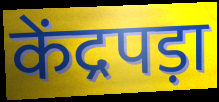
केंद्रपड़ा